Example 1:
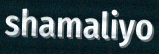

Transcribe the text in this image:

shamaliyo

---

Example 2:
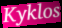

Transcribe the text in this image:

Kyklos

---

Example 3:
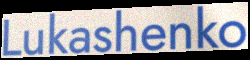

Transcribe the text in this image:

Lukashenko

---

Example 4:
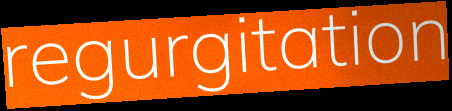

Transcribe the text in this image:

regurgitation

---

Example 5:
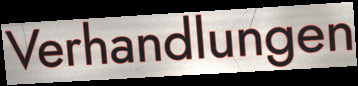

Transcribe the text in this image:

Verhandlungen